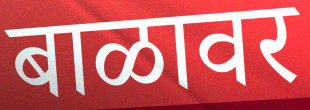
बाळावर